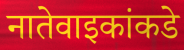
नातेवाइकांकडे